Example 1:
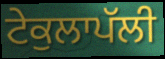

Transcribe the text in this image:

ਟੇਕੁਲਾਪੱਲੀ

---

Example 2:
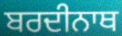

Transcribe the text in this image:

ਬਰਦੀਨਾਥ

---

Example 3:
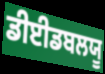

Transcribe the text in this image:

ਡੀਈਡਬਲਯੂ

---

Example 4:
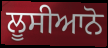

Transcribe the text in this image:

ਲੂਸੀਆਨੋ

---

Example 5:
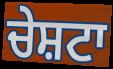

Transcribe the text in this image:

ਚੇਸ਼ਟਾ